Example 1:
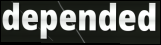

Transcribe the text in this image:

depended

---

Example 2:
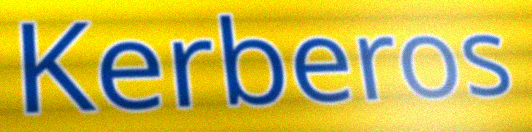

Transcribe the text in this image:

Kerberos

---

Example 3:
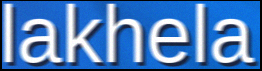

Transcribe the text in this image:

lakhela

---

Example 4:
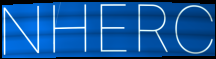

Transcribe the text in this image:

NHERC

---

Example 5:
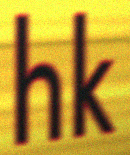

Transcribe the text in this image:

hk